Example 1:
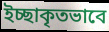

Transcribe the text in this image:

ইচ্ছাকৃতভাবে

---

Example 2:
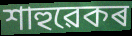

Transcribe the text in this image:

শাহুৱেকৰ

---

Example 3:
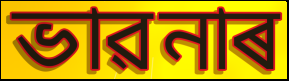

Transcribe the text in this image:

ভাৱনাৰ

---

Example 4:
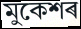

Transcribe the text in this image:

মুকেশৰ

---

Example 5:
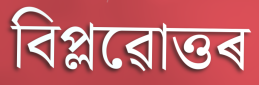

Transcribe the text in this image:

বিপ্লৱোত্তৰ